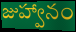
జుహ్వానం